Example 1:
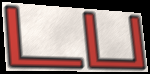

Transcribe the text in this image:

டப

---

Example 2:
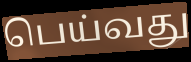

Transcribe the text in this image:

பெய்வது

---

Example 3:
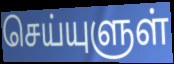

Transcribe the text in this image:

செய்யுளுள்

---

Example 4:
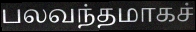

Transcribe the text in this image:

பலவந்தமாகச்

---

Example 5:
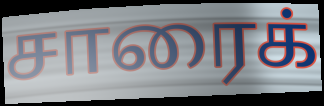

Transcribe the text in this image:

சாரைக்